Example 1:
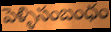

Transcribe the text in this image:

పెళ్ళిసంబంధం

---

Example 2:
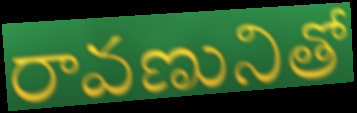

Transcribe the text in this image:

రావణునితో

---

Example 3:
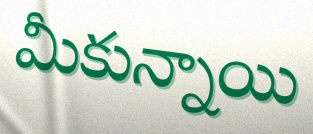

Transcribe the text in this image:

మీకున్నాయి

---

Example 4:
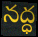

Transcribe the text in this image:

నద్ధ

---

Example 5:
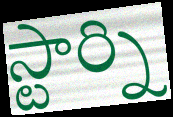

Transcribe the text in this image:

స్టార్ని